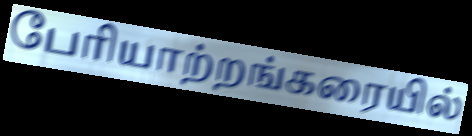
பேரியாற்றங்கரையில்